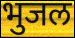
भुजल